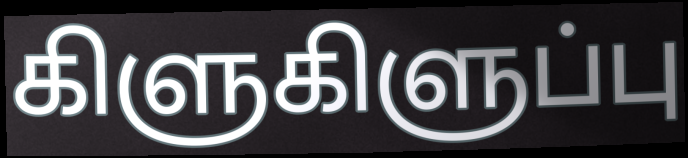
கிளுகிளுப்பு